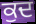
ਕੁਦ